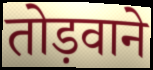
तोड़वाने